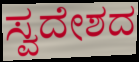
ಸ್ವದೇಶದ